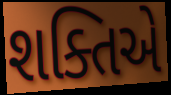
શક્તિએ